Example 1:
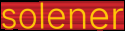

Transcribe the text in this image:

solener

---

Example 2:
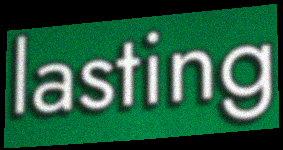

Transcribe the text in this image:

lasting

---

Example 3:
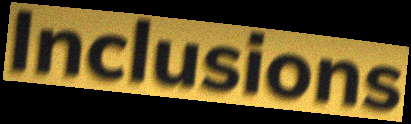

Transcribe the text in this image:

Inclusions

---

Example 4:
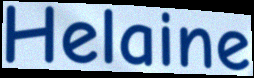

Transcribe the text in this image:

Helaine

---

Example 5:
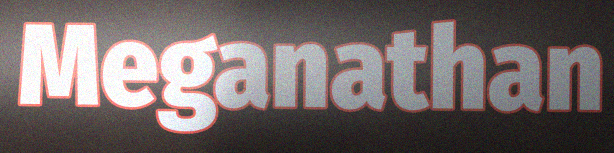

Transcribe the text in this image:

Meganathan